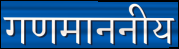
गणमाननीय